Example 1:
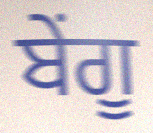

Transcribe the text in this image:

ਬੇਂਗੂ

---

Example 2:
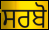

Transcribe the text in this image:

ਸਰਬੋ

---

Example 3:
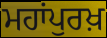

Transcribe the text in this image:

ਮਹਾਂਪੁਰਖ਼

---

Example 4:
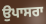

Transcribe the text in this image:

ਉਪਾਸਰਾ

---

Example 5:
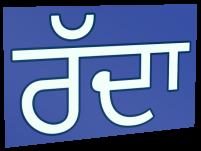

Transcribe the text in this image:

ਰੱਦਾ